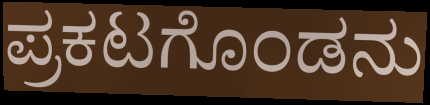
ಪ್ರಕಟಗೊಂಡನು